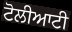
ਟੋਲੀਆਟੀ